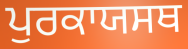
ਪੁਰਕਾਯਸਥ